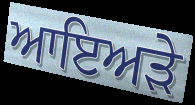
ਆਇਅੜੇ